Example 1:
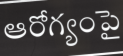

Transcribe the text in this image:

ఆరోగ్యంపై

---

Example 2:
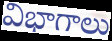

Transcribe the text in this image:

విభాగాలు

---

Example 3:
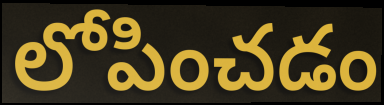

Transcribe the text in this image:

లోపించడం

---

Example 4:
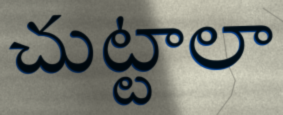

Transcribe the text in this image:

చుట్టాలా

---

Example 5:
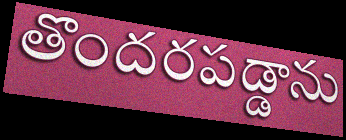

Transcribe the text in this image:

తొందరపడ్డాను